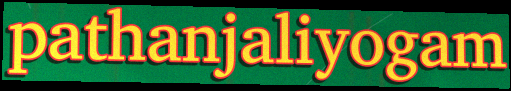
pathanjaliyogam